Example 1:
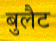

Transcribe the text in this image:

बुलैट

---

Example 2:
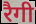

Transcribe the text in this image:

रैगी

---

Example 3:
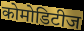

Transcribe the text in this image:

कोमोडिटीज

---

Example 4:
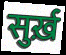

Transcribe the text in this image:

सुर्ख़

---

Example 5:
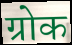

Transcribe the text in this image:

ग्रोक